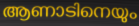
ആണാടിനെയും